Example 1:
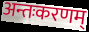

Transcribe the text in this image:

अन्तःकरणम्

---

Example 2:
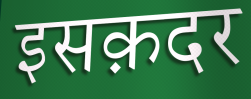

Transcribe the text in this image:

इसक़दर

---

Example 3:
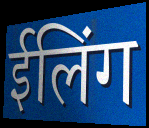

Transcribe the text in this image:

ईलिंग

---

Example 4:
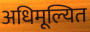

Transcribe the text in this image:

अधिमूल्यित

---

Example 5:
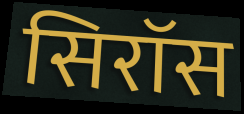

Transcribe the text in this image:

सिरॉस